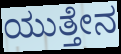
ಯುತ್ತೇನ